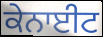
ਕੇਨਾਈਟ